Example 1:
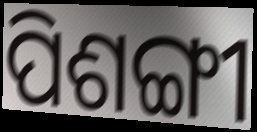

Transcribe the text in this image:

ପିଶଙ୍ଗୀ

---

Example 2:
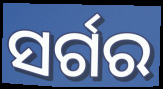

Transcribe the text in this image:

ସର୍ଗର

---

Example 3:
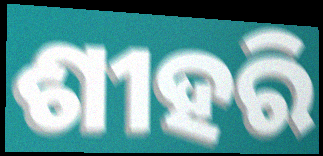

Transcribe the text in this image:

ଶୀହରି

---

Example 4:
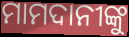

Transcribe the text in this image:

ମାମଦାନୀଙ୍କୁ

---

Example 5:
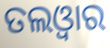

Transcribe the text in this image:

ତଲଓ୍ୱାର